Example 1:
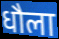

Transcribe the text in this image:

धौला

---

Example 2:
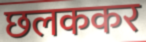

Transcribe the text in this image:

छलककर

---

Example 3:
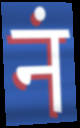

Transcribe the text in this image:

नं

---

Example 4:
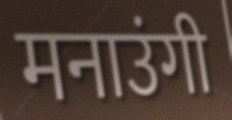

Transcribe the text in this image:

मनाउंगी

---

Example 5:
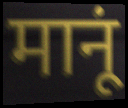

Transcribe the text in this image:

मानूं